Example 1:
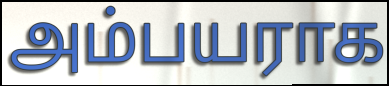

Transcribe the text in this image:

அம்பயராக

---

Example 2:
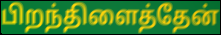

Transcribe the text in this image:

பிறந்திளைத்தேன்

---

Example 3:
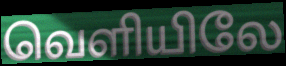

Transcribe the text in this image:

வெளியிலே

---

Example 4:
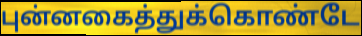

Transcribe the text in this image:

புன்னகைத்துக்கொண்டே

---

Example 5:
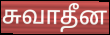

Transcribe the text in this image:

சுவாதீன